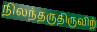
நிலந்தருதிருவிற்